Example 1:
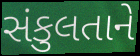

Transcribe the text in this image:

સંકુલતાને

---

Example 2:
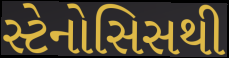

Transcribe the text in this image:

સ્ટેનોસિસથી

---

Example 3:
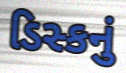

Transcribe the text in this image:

ડિસ્કનું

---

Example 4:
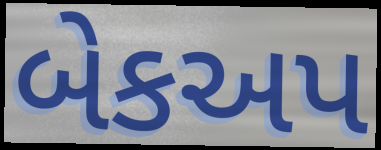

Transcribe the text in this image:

બેકઅપ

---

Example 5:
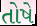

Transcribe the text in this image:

તોષે